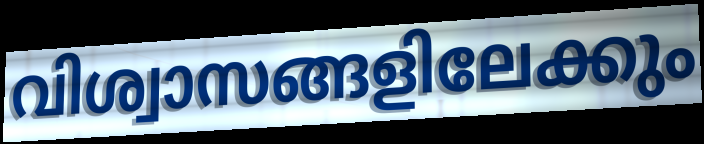
വിശ്വാസങ്ങളിലേക്കും